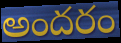
అందరం